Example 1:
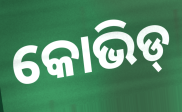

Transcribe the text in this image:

କୋଭିଡ୍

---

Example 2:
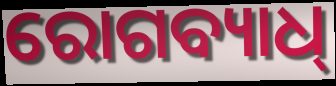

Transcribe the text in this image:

ରୋଗବ୍ୟାଧ୍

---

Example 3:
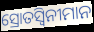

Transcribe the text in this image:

ସ୍ରୋତସ୍ୱିନୀମାନ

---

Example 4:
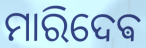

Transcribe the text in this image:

ମାରିଦେଵ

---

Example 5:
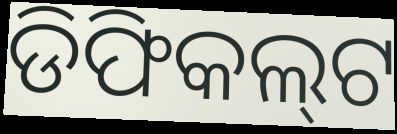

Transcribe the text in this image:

ଡିଫିକଲ୍‌ଟ